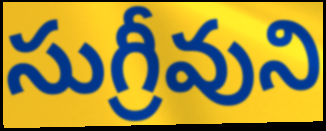
సుగ్రీవుని